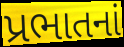
પ્રભાતનાં